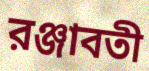
রঞ্জাবতী